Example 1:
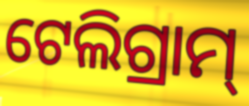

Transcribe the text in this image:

ଟେଲିଗ୍ରାମ୍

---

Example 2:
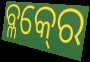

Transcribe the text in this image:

ବ୍ଳକ୍‍ରେ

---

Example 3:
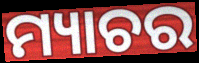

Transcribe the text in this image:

ମ୍ୟାଚର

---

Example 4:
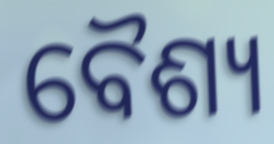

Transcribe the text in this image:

ବୈଶ୍ୟ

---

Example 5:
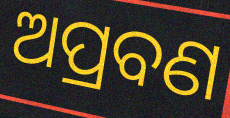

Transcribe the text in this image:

ଅପ୍ରବଣ